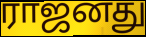
ராஜனது